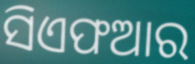
ସିଏଫଆର